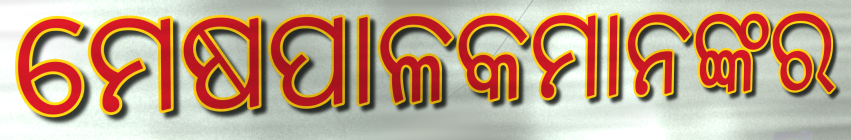
ମେଷପାଳକମାନଙ୍କର